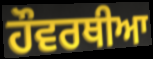
ਹੌਵਰਥੀਆ